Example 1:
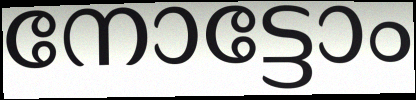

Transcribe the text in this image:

നോട്ടോം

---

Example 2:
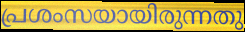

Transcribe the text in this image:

പ്രശംസയായിരുന്നതു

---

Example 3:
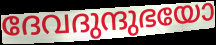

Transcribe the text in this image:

ദേവദുന്ദുഭയോ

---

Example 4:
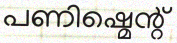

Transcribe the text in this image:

പണിഷ്മെന്റ്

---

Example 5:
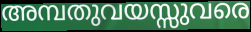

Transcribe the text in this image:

അമ്പതുവയസ്സുവരെ